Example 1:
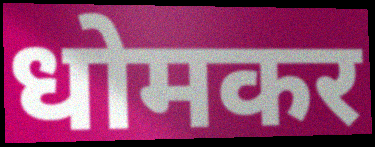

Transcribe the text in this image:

धोमकर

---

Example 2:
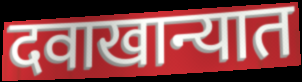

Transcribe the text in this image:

दवाखान्यात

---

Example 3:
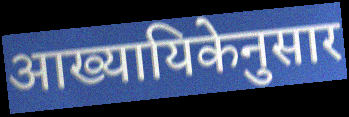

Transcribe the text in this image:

आख्यायिकेनुसार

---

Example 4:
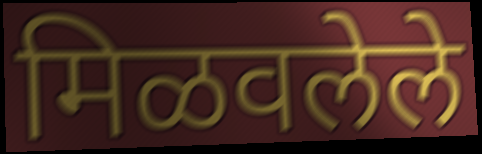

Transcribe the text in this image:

मिळवलेले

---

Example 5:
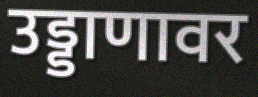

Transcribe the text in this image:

उड्डाणावर